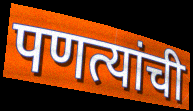
पणत्यांची